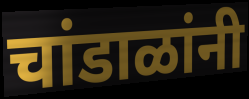
चांडाळांनी